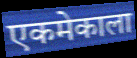
एकमेकाला